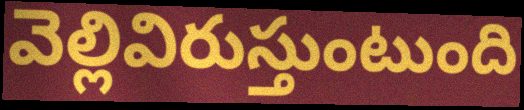
వెల్లివిరుస్తుంటుంది